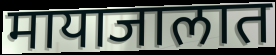
मायाजालात